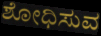
ಶೋಧಿಸುವ